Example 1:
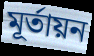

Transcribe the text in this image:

মূর্তায়ন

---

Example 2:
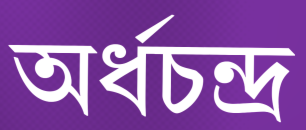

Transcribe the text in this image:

অর্ধচন্দ্র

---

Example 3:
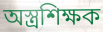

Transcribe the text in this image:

অস্ত্রশিক্ষক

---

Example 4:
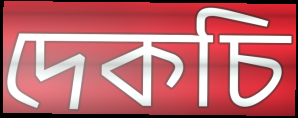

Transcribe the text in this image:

দেকচি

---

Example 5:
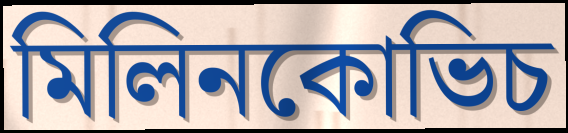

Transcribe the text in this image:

মিলিনকোভিচ